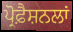
ਪ੍ਰੋਫ਼ੈਸ਼ਨਲਾਂ